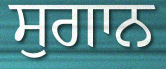
ਸੁਗਾਨ